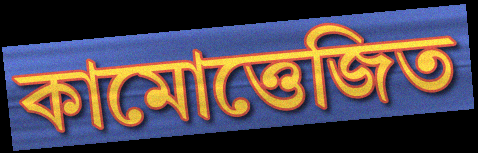
কামোত্তেজিত